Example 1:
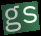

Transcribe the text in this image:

gs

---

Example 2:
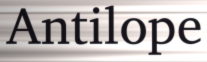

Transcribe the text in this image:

Antilope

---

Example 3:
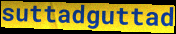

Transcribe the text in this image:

suttadguttad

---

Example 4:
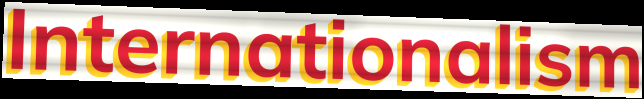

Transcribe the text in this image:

Internationalism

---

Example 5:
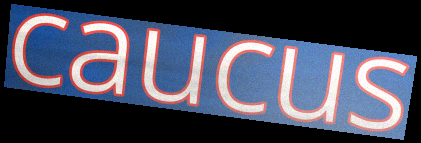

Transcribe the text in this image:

caucus